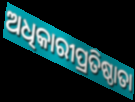
ଅଧିକାରୀପ୍ରତିଷ୍ଠାତା